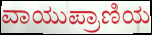
ವಾಯುಪ್ರಾಣಿಯ